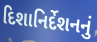
દિશાનિર્દેશનનું